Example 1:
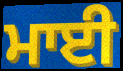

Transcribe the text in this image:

ਮਾਈ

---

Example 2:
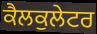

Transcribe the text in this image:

ਕੈਲਕੁਲੇਟਰ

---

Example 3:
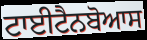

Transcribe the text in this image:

ਟਾਈਟੈਨਬੋਆਸ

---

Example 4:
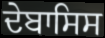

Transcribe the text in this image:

ਦੇਬਾਸਿਸ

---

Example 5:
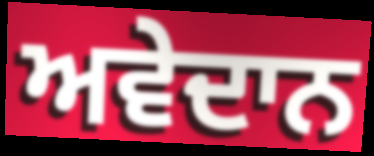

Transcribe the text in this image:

ਅਵੇਦਾਨ